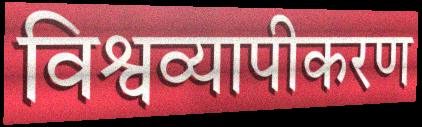
विश्वव्यापीकरण